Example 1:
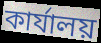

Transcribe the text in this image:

কাৰ্যালয়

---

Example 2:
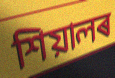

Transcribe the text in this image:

শিয়ালৰ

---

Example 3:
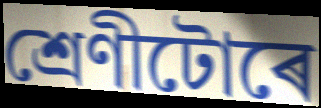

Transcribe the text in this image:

শ্ৰেণীটোৰে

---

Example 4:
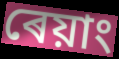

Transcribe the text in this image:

ৰেয়াং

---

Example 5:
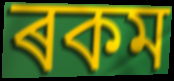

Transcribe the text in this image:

ৰকম